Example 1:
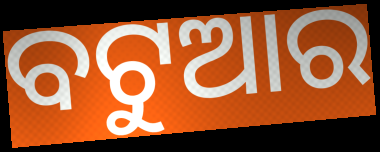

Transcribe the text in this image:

ବଟୁଆର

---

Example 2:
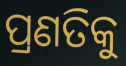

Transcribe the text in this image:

ପ୍ରଣତିକୁ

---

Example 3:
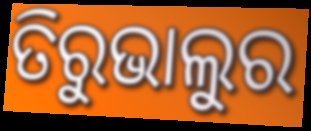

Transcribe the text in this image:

ତିରୁଭାଲୁର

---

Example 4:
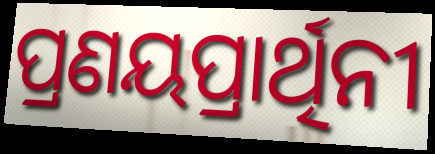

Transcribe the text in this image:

ପ୍ରଣୟପ୍ରାର୍ଥିନୀ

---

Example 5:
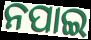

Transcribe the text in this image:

ନପାଇ